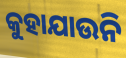
କୁହାଯାଉନି